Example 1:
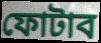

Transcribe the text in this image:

ফোটাব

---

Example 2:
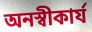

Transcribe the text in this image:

অনস্বীকার্য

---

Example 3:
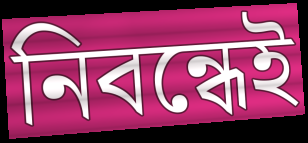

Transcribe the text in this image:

নিবন্ধেই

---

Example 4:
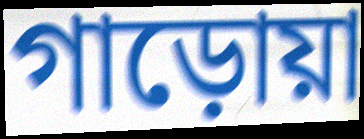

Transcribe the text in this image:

গাড়োয়া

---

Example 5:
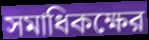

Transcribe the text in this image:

সমাধিকক্ষের